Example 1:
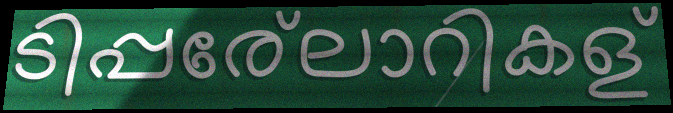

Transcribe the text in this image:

ടിപ്പര്ലോറികള്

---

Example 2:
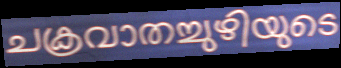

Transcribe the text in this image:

ചക്രവാതച്ചുഴിയുടെ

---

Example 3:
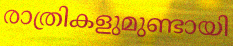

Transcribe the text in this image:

രാത്രികളുമുണ്ടായി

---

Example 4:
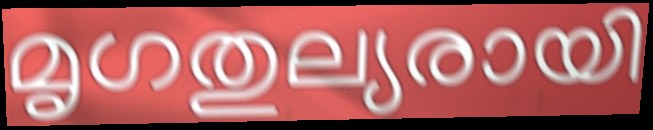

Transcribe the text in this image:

മൃഗതുല്യരായി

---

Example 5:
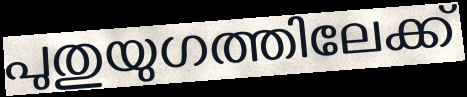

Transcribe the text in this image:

പുതുയുഗത്തിലേക്ക്